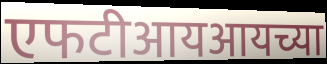
एफटीआयआयच्या